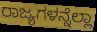
ರಾಜ್ಯಗಳನ್ನೆಲ್ಲಾ